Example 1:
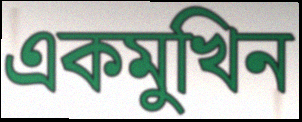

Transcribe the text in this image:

একমুখিন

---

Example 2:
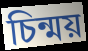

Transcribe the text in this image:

চিন্ময়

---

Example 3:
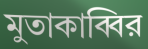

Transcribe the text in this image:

মুতাকাব্বির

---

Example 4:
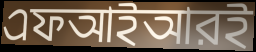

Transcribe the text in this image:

এফআইআরই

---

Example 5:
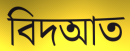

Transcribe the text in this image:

বিদআত